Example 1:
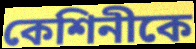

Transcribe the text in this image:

কেশিনীকে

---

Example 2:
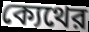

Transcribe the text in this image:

ক্যেথের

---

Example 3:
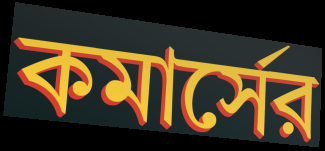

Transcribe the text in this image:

কমার্সের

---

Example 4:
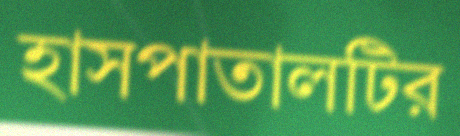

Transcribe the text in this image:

হাসপাতালটির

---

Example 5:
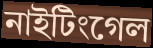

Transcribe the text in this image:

নাইটিংগেল